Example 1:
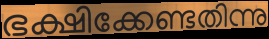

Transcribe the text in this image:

ഭക്ഷിക്കേണ്ടതിന്നു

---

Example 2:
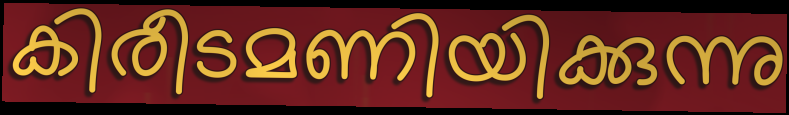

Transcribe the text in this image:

കിരീടമണിയിക്കുന്നു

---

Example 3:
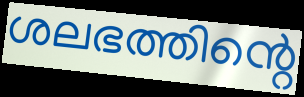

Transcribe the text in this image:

ശലഭത്തിന്റെ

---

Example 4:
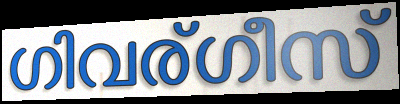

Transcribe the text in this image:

ഗിവര്ഗീസ്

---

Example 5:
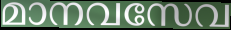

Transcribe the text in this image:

മാനവസേവ